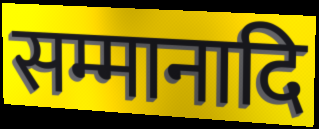
सम्मानादि